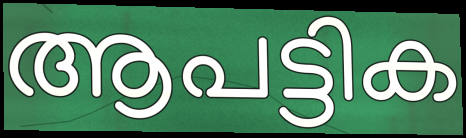
ആപട്ടിക